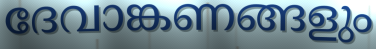
ദേവാങ്കണങ്ങളും